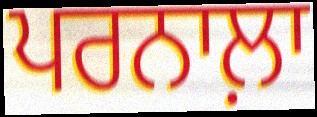
ਪਰਨਾਲ਼ਾ